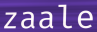
zaale